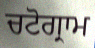
ਚਟੋਗ੍ਰਾਮ